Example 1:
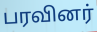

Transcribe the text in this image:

பரவினர்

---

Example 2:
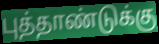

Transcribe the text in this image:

புத்தாண்டுக்கு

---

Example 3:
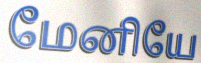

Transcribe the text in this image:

மேனியே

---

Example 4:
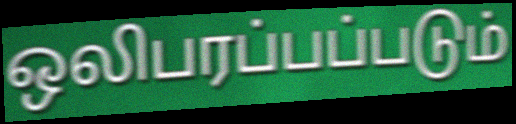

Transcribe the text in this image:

ஒலிபரப்பப்படும்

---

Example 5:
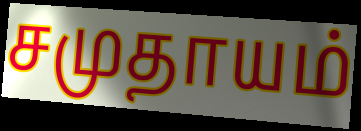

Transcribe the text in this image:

சமுதாயம்